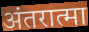
अंतरात्मा